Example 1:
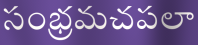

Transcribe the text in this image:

సంభ్రమచపలా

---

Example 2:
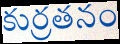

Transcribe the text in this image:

కుర్రతనం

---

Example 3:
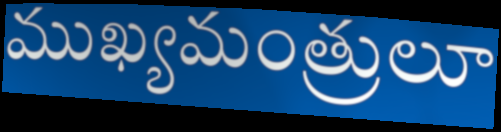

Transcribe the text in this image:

ముఖ్యమంత్రులూ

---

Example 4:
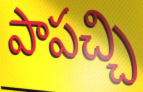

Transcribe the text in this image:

పాపచ్చి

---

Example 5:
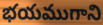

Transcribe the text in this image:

భయముగాని